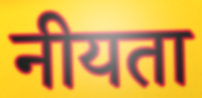
नीयता